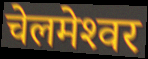
चेलमेश्‍वर